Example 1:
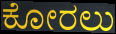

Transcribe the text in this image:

ಕೋರಲು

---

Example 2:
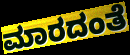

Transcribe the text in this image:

ಮಾರದಂತೆ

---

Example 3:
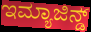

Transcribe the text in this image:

ಇಮ್ಯಾಜಿನ್ಡ್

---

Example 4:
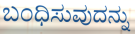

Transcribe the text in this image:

ಬಂಧಿಸುವುದನ್ನು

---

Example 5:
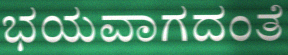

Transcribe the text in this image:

ಭಯವಾಗದಂತೆ